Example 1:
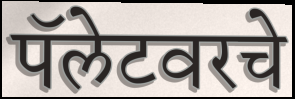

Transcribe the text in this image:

पॅलेटवरचे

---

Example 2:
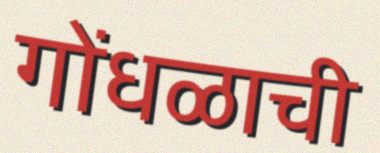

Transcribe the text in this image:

गोंधळाची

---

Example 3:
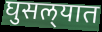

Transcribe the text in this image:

घुसल्यात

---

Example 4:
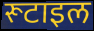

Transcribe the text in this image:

रूटाइल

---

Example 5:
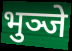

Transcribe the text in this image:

भुञ्जे